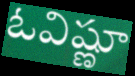
ఓవిష్ణూ